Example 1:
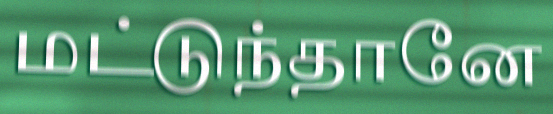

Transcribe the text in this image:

மட்டுந்தானே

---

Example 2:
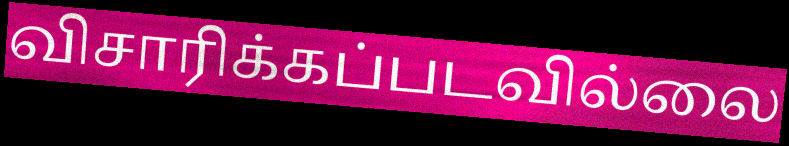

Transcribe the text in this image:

விசாரிக்கப்படவில்லை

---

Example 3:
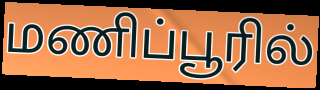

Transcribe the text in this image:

மணிப்பூரில்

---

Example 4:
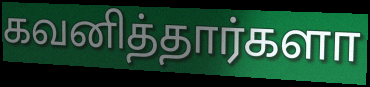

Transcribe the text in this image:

கவனித்தார்களா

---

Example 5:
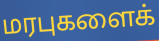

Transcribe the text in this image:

மரபுகளைக்